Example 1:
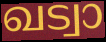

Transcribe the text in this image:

ഖട്വാ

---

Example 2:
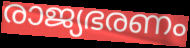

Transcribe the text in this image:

രാജ്യഭരണം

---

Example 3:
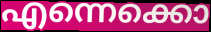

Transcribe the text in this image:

എന്നെക്കൊ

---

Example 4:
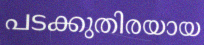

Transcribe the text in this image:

പടക്കുതിരയായ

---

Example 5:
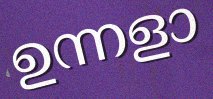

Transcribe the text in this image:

ഉന്നളാ